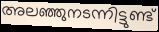
അലഞ്ഞുനടന്നിട്ടുണ്ട്